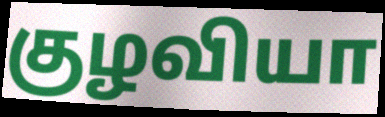
குழவியா